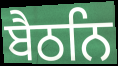
ਬੈਠਨਿ